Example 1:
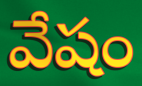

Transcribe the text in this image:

వేషం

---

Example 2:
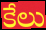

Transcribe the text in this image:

కేలు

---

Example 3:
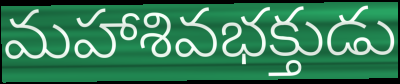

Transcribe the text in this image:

మహాశివభక్తుడు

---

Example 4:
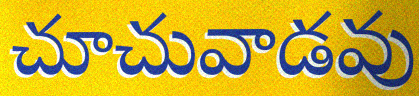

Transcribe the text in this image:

చూచువాడవు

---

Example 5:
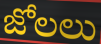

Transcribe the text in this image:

జోలలు